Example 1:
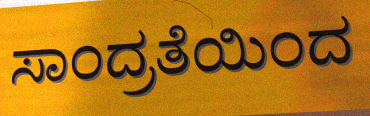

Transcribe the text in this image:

ಸಾಂದ್ರತೆಯಿಂದ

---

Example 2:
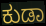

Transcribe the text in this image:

ಕುಡಾ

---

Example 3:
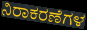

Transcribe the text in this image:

ನಿರಾಕರಣೆಗಳ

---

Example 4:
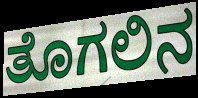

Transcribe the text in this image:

ತೊಗಲಿನ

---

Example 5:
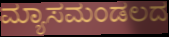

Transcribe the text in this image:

ಮ್ಯಾಸಮಂಡಲದ